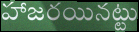
హాజరయినట్టు